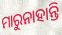
ମାରୁନାହାନ୍ତି